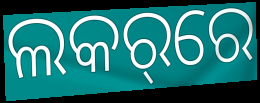
ଲକର୍‌ରେ